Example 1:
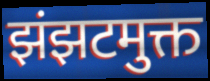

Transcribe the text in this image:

झंझटमुक्त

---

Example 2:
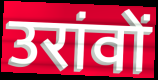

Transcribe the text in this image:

उरांवों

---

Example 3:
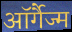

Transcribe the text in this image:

ऑर्गैज्म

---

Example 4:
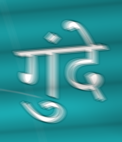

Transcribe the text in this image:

गुंदे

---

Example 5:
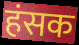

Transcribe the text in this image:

हंसक